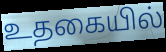
உதகையில்